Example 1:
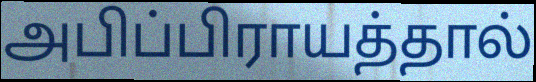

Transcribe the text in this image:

அபிப்பிராயத்தால்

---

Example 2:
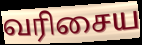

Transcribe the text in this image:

வரிசைய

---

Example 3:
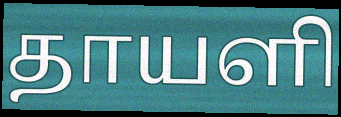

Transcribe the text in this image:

தாயளி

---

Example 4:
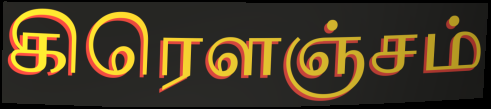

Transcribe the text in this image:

கிரௌஞ்சம்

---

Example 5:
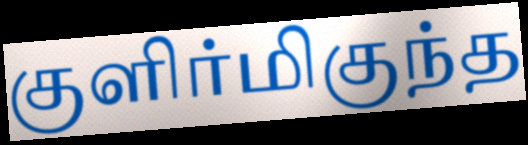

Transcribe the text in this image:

குளிர்மிகுந்த